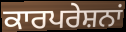
ਕਾਰਪਰੇਸ਼ਨਾਂ